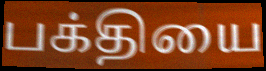
பக்தியை